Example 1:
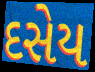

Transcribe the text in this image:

દસેય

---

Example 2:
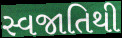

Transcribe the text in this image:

સ્વજાતિથી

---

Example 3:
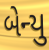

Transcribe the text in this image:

બેન્યુ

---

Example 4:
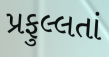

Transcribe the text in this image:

પ્રફુલ્લતાં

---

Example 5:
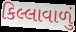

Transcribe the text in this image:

કિલ્લાવાળું